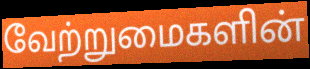
வேற்றுமைகளின்